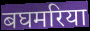
बघमरिया